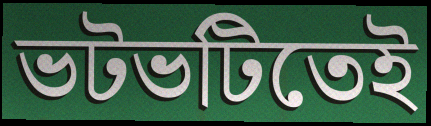
ভটভটিতেই